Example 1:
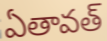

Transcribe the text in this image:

ఏతావత్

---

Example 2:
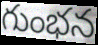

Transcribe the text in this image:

గుంభన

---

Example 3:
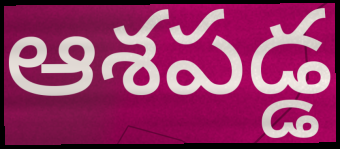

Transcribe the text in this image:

ఆశపడ్డ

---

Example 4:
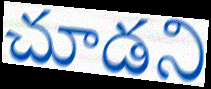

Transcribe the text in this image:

చూడని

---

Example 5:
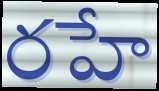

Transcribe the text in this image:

రహే